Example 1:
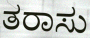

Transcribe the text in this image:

ತರಾಸು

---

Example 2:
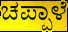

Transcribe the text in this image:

ಚಪ್ಪಾಳೆ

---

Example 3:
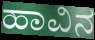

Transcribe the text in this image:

ಹಾವಿನ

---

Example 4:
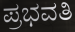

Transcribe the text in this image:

ಪ್ರಭವತಿ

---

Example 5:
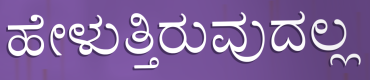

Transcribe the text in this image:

ಹೇಳುತ್ತಿರುವುದಲ್ಲ